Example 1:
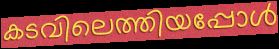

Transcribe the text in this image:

കടവിലെത്തിയപ്പോൾ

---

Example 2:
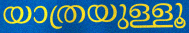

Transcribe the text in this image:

യാത്രയുള്ളൂ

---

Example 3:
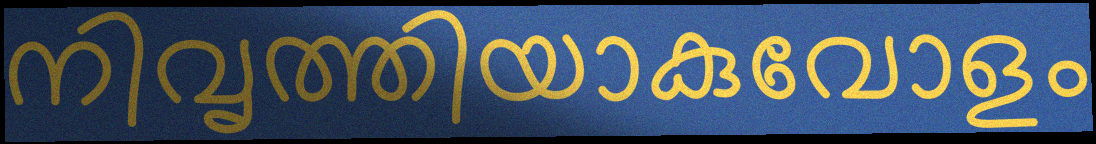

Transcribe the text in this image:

നിവൃത്തിയാകുവോളം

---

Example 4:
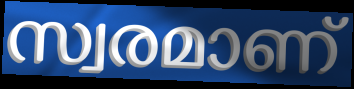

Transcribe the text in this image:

സ്വരമാണ്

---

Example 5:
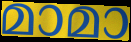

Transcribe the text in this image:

മാമാ